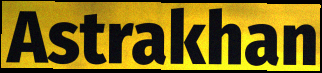
Astrakhan